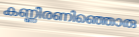
കണ്ണീരണിഞ്ഞൊരു